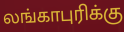
லங்காபுரிக்கு